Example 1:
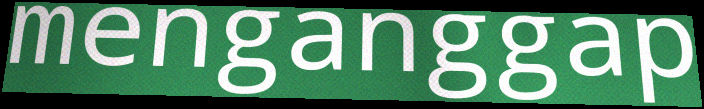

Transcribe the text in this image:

menganggap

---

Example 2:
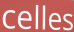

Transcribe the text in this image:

celles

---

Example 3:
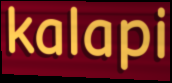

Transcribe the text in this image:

kalapi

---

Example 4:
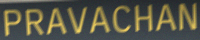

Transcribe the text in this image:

PRAVACHAN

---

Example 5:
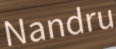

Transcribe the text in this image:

Nandru